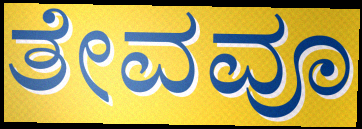
ತೇವವೂ